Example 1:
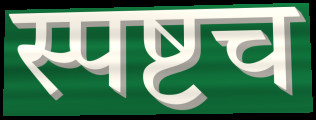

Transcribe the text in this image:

स्पष्टच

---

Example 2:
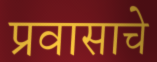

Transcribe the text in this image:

प्रवासाचे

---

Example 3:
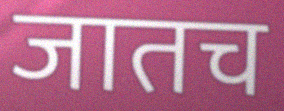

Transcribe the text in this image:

जातच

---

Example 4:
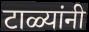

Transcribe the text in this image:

टाळ्यांनी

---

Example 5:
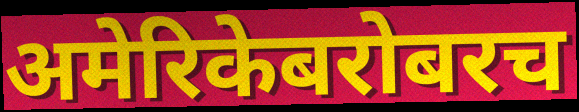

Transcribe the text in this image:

अमेरिकेबरोबरच